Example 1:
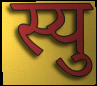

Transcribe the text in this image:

स्यु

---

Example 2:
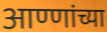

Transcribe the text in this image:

आण्णांच्या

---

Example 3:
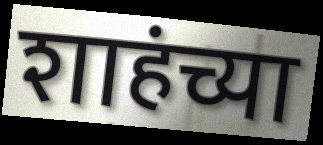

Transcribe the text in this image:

शाहंच्या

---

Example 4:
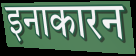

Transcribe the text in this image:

इनाकारन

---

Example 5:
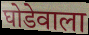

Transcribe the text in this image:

घोडेवाला